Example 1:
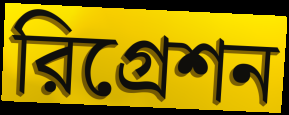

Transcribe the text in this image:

রিগ্রেশন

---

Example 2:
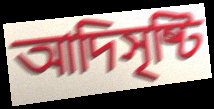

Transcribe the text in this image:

আদিসৃষ্টি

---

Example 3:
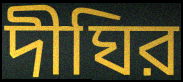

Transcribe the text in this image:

দীঘির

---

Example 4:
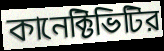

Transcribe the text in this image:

কানেক্টিভিটির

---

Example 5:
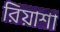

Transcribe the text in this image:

রিয়াশা